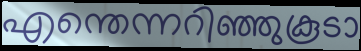
എന്തെന്നറിഞ്ഞുകൂടാ